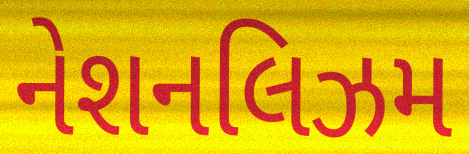
નેશનલિઝમ